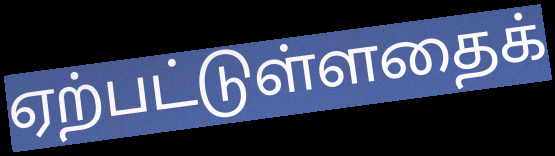
ஏற்பட்டுள்ளதைக்